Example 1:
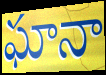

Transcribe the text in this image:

ఘానా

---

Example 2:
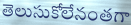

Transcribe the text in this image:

తెలుసుకోలేనంతగా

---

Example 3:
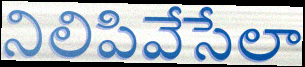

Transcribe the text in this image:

నిలిపివేసేలా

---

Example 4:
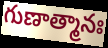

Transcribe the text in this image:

గుణాత్మానః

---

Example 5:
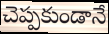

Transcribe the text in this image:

చెప్పకుండానే